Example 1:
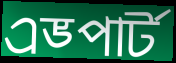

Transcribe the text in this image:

এঙ্পার্ট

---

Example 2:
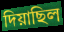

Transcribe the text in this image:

দিয়াছিল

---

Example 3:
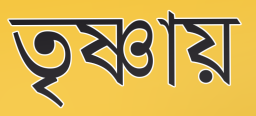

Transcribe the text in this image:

তৃষ্ণায়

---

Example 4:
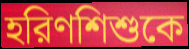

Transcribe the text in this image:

হরিণশিশুকে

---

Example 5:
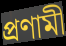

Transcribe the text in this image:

প্রণামী